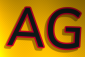
AG